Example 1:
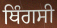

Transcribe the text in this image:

ਥਿੰਗਸੀ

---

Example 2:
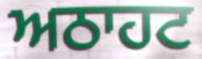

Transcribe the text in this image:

ਅਠਾਹਟ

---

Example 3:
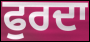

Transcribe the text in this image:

ਫੁਰਦਾ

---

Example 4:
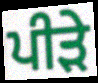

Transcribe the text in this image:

ਪੀੜੇ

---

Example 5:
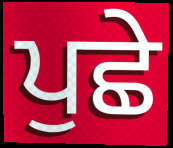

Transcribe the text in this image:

ਪੁਛੇ